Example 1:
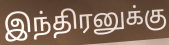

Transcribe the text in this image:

இந்திரனுக்கு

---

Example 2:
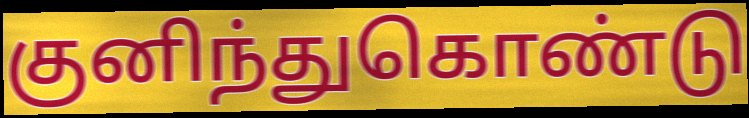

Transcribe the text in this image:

குனிந்துகொண்டு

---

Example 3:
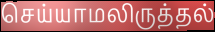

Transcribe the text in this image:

செய்யாமலிருத்தல்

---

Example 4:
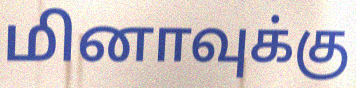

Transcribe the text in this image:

மினாவுக்கு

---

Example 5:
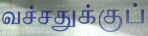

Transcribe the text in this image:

வச்சதுக்குப்